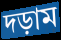
দড়াম